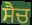
ਸੈਚ